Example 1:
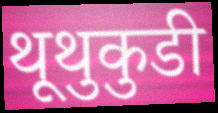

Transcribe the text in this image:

थूथुकुडी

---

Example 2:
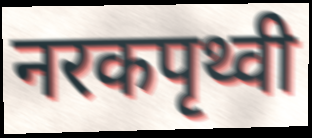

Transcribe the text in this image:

नरकपृथ्वी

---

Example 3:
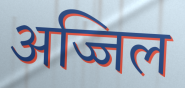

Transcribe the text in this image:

अज्जिल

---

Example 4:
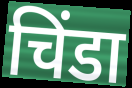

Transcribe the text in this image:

चिंडा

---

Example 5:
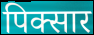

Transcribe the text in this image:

पिक्सार